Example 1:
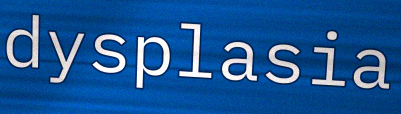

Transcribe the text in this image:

dysplasia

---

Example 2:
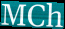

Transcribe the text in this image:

MCh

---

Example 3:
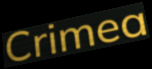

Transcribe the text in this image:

Crimea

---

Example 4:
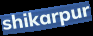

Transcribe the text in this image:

shikarpur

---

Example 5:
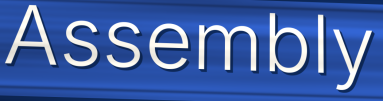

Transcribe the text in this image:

Assembly